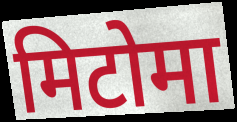
मिटोमा